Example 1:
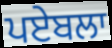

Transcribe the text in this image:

ਪਏਬਲਾ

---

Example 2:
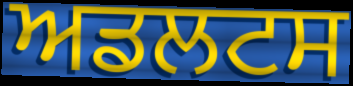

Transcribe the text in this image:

ਅਡਲਟਸ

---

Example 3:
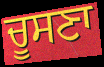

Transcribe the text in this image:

ਚੂਸਣਾ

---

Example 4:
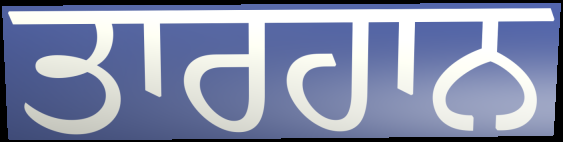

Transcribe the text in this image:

ਤਾਰਹਾਨ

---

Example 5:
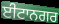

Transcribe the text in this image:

ਈਟਾਨਗਰ